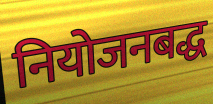
नियोजनबद्ध